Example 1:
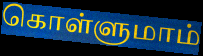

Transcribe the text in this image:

கொள்ளுமாம்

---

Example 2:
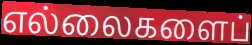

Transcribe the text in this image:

எல்லைகளைப்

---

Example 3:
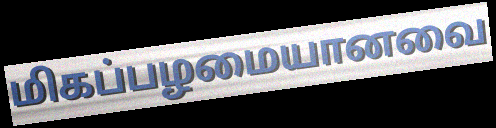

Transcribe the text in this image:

மிகப்பழமையானவை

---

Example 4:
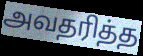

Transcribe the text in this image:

அவதரித்த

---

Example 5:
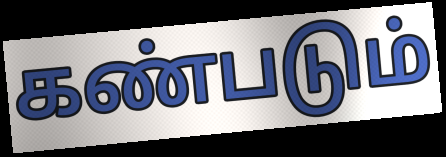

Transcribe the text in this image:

கண்படும்